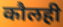
कौलही